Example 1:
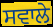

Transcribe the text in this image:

ਸਵਾਲੇ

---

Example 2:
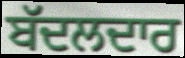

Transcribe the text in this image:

ਬੱਦਲਦਾਰ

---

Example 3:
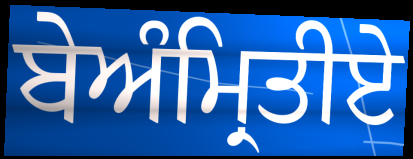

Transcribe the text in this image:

ਬੇਅੰਮ੍ਰਿਤੀਏ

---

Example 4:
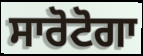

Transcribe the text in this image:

ਸਾਰੋਟੋਗਾ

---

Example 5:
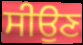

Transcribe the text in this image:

ਸੀਉਣ